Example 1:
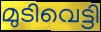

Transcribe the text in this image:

മുടിവെട്ടി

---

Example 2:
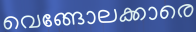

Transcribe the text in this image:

വെങ്ങോലക്കാരെ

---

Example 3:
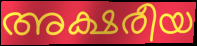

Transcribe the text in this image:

അക്ഷരീയ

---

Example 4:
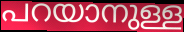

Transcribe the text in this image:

പറയാനുള്ള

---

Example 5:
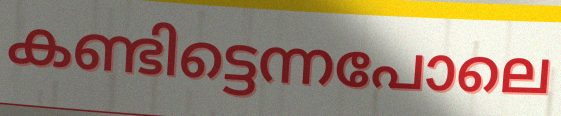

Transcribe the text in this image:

കണ്ടിട്ടെന്നപോലെ